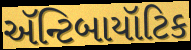
ઍન્ટિબાયૉટિક